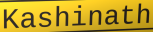
Kashinath